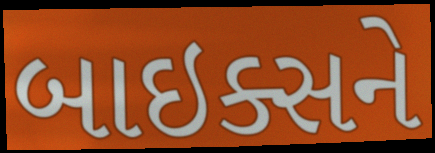
બાઇક્સને